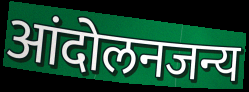
आंदोलनजन्य